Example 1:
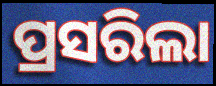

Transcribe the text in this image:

ପ୍ରସରିଲା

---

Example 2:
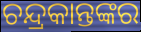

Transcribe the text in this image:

ଚନ୍ଦ୍ରକାନ୍ତଙ୍କର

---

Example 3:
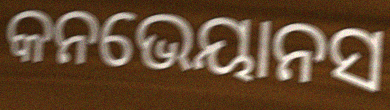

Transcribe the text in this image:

କନଭେୟାନସ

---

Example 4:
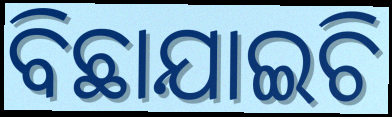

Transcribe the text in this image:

ବିଛାଯାଇଚି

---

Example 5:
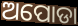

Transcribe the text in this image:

ଅପୋଡା